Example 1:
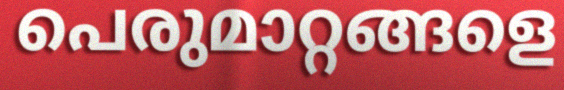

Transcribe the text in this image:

പെരുമാറ്റങ്ങളെ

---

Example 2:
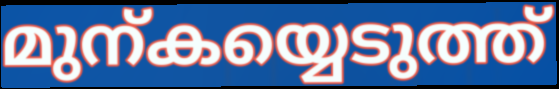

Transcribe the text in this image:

മുന്കയ്യെടുത്ത്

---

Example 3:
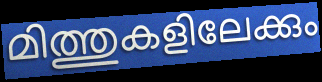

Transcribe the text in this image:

മിത്തുകളിലേക്കും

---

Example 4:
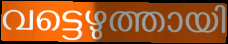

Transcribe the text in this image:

വട്ടെഴുത്തായി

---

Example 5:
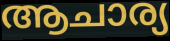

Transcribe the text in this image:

ആചാര്യ